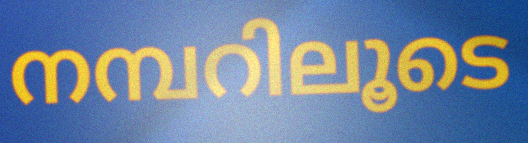
നമ്പറിലൂടെ